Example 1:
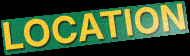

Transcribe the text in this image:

LOCATION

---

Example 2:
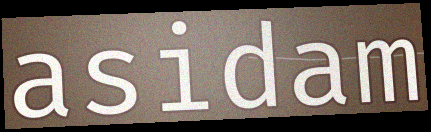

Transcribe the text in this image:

asidam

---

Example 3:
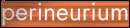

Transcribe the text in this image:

perineurium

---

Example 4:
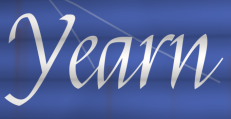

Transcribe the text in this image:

Yearn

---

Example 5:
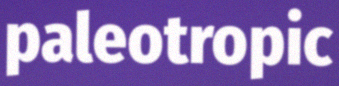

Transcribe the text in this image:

paleotropic